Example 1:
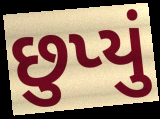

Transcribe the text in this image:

છુપ્યું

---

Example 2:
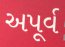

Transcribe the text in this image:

અપૂર્વ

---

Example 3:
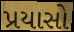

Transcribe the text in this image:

પ્રયાસો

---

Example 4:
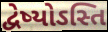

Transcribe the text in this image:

દ્વેષ્યોઽસ્તિ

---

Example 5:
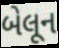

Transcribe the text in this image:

બેલૂન